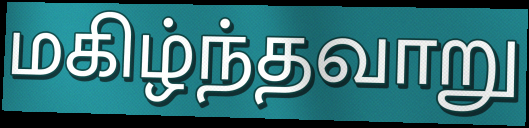
மகிழ்ந்தவாறு